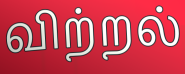
விற்றல்